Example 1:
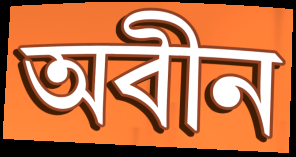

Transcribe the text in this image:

অবীন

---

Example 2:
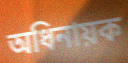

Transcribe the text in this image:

অধিনায়ক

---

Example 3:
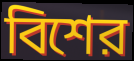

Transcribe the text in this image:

বিশের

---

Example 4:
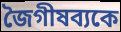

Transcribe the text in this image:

জৈগীষব্যকে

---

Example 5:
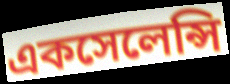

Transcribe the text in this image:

একসেলেন্সি